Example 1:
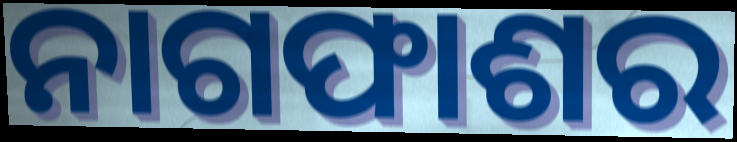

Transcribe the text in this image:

ନାଗଫାଶର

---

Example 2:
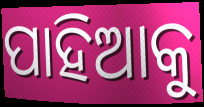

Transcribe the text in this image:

ପାହିଆକୁ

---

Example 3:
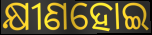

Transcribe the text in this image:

କ୍ଷୀଣହୋଇ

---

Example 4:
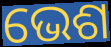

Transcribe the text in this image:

ଭେଶ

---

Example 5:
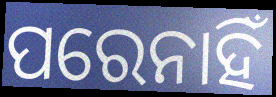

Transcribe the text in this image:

ପରେନାହିଁ